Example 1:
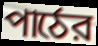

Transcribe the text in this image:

পাঠের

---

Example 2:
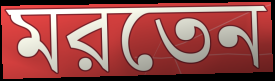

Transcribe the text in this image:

মরতেন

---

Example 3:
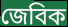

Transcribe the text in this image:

জেবিক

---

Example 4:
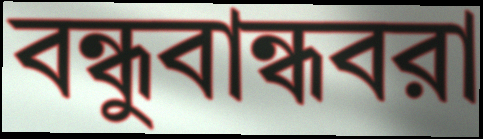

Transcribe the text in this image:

বন্ধুবান্ধবরা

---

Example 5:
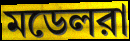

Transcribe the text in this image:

মডেলরা